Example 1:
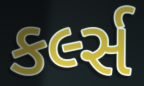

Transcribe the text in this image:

કર્લ્સ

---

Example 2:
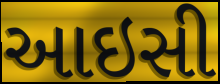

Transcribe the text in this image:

આઇસી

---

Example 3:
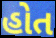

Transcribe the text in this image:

હોત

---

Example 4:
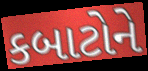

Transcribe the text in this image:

કબાટોને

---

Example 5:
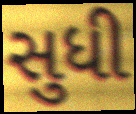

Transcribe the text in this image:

સુધી